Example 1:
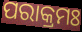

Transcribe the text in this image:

ପରାକ୍ରମଃ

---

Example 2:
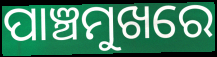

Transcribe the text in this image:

ପାଞ୍ଚମୁଖରେ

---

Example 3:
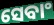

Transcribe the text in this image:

ସେବାଂ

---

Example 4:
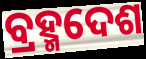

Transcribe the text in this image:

ବ୍ରହ୍ମଦେଶ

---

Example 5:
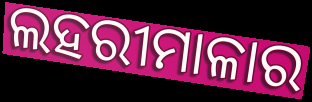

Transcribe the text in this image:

ଲହରୀମାଳାର